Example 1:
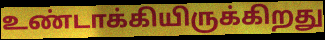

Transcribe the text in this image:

உண்டாக்கியிருக்கிறது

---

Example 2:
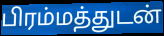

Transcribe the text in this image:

பிரம்மத்துடன்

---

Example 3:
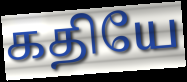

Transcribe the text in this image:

கதியே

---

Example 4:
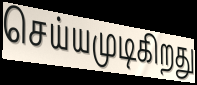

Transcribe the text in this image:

செய்யமுடிகிறது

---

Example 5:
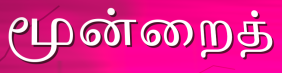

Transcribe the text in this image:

மூன்றைத்